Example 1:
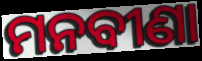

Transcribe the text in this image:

ମନବୀଣା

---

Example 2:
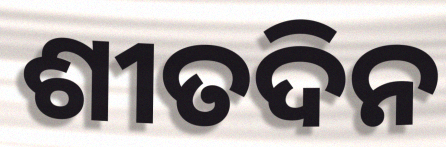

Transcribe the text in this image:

ଶୀତଦିନ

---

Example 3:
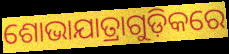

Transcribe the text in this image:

ଶୋଭାଯାତ୍ରାଗୁଡ଼ିକରେ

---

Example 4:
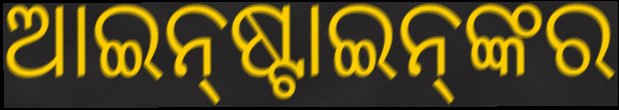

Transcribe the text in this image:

ଆଇନ୍‌ଷ୍ଟାଇନ୍‌ଙ୍କର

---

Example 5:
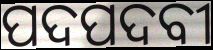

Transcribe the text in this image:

ପଦପଦବୀ